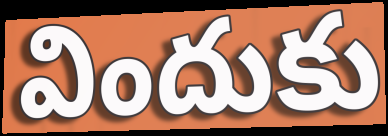
విందుకు